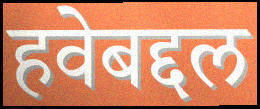
हवेबद्दल